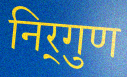
निर्गुण